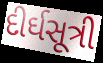
દીર્ઘસૂત્રી